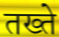
तख्ते